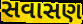
સવાસણ